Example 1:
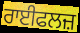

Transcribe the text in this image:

ਰਾਈਫਲਜ਼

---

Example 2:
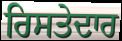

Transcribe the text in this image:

ਰਿਸਤੇਦਾਰ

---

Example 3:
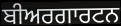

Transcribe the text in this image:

ਬੀਅਰਗਾਰਟਨ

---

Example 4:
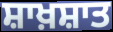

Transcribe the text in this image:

ਸ਼ਾਖ਼ਸ਼ਾਤ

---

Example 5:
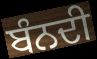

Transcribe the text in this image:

ਬੰਨਦੀ